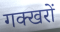
गक्खरों